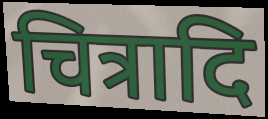
चित्रादि